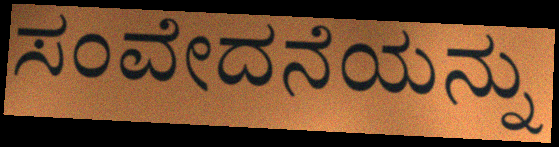
ಸಂವೇದನೆಯನ್ನು